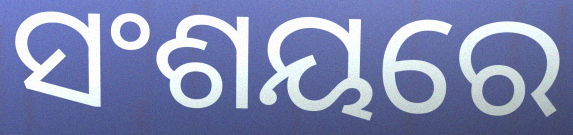
ସଂଶୟରେ